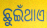
ଛୁଇଁଥାଏ